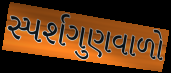
સ્પર્શગુણવાળો